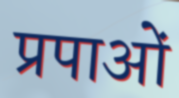
प्रपाओं